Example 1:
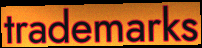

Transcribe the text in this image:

trademarks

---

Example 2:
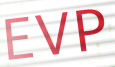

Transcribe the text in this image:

EVP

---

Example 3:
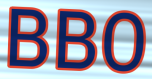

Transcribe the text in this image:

BBO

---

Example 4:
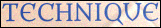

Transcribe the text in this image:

TECHNIQUE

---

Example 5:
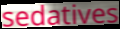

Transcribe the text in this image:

sedatives